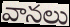
వానలు